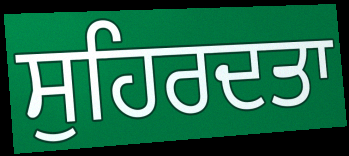
ਸੁਹਿਰਦਤਾ